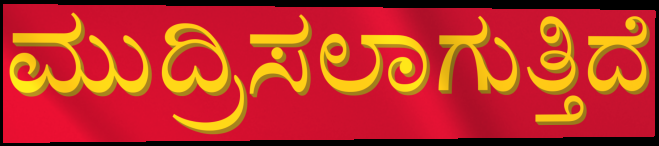
ಮುದ್ರಿಸಲಾಗುತ್ತಿದೆ